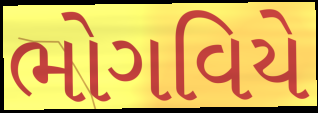
ભોગવિયે